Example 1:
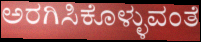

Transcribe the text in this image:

ಅರಗಿಸಿಕೊಳ್ಳುವಂತೆ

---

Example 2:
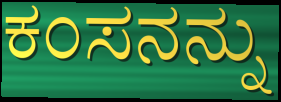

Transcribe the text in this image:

ಕಂಸನನ್ನು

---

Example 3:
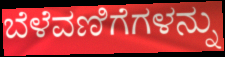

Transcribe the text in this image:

ಬೆಳೆವಣಿಗೆಗಳನ್ನು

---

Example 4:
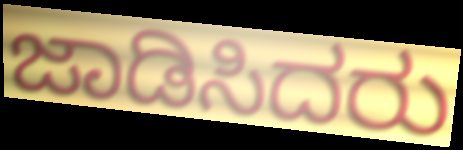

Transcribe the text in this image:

ಜಾಡಿಸಿದರು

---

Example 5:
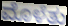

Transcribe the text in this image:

ಮೊಳೆತು